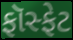
ફૉસ્ફેટ